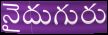
నైదుగురు